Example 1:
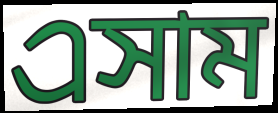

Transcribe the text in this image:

এসাম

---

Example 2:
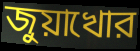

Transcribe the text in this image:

জুয়াখোর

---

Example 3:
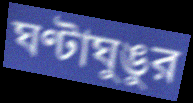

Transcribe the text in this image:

ঘণ্টাঘুঙুর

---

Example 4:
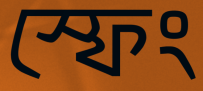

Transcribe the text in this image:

স্ফেং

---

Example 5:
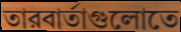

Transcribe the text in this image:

তারবার্তাগুলোতে